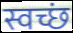
स्वच्छं